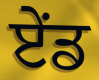
ਏੰਡ